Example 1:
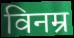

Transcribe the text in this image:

विनम्र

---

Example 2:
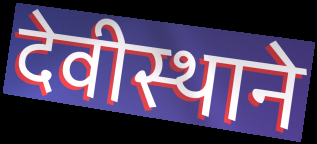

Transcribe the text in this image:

देवीस्थाने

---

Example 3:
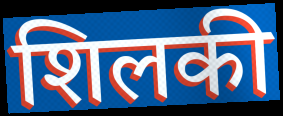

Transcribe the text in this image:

शिलकी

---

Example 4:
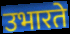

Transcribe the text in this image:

उभारते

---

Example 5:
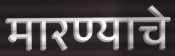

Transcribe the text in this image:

मारण्याचे